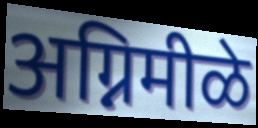
अग्निमीळे